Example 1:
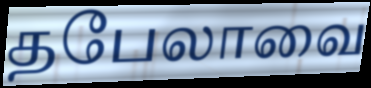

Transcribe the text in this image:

தபேலாவை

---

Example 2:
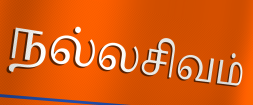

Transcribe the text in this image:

நல்லசிவம்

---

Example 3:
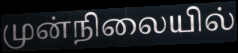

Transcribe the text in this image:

முன்நிலையில்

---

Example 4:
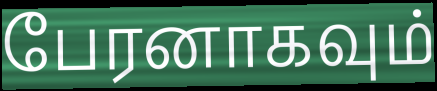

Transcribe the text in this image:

பேரனாகவும்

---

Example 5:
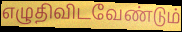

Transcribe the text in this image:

எழுதிவிடவேண்டும்